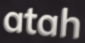
atah